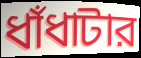
ধাঁধাটার